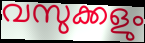
വസുക്കളും